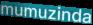
mumuzinda